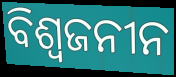
ବିଶ୍ବଜନୀନ